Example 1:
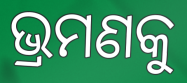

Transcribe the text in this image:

ଭ୍ରମଣକୁ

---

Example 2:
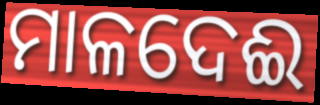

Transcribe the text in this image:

ମାଳଦେଈ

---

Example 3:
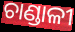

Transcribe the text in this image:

ଚାଣ୍ଡାଳୀ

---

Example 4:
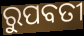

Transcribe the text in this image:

ରୁପବତୀ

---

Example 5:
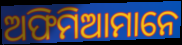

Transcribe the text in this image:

ଅଫିମିଆମାନେ